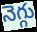
నెగ్గు